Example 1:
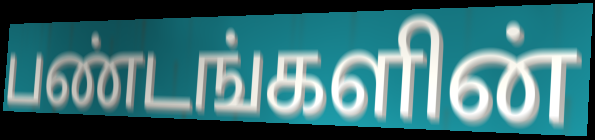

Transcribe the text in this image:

பண்டங்களின்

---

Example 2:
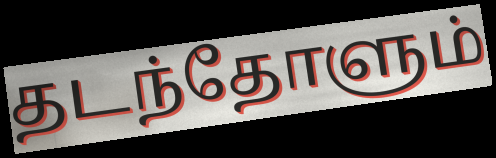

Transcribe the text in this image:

தடந்தோளும்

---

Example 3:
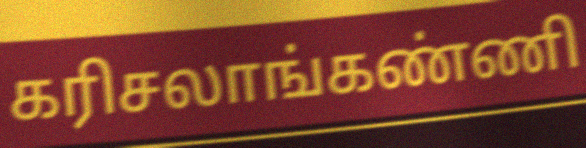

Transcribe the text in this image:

கரிசலாங்கண்ணி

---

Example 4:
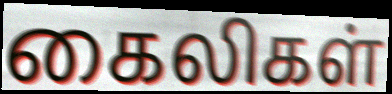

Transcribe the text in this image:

கைலிகள்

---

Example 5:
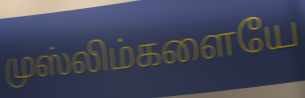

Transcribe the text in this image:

முஸ்லிம்களையே